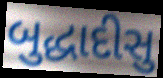
બુદ્ધાદીસુ